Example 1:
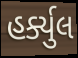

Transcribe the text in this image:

હર્ક્યુલ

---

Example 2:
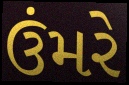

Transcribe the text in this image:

ઉંમરે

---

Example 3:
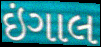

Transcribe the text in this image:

ઇંગાલ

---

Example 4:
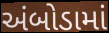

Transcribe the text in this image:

અંબોડામાં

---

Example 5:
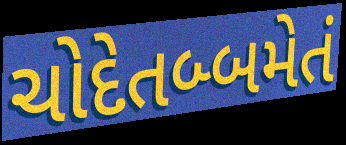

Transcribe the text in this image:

ચોદેતબ્બમેતં